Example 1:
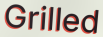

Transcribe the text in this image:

Grilled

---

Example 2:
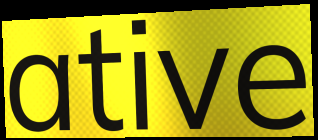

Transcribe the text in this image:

ative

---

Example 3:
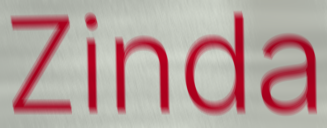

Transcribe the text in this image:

Zinda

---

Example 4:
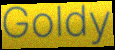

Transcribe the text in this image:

Goldy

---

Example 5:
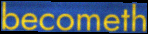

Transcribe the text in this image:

becometh